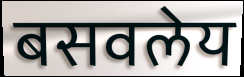
बसवलेय